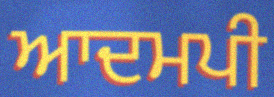
ਆਦਮਪੀ